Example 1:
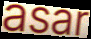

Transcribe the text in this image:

asar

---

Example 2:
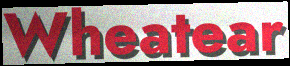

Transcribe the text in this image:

Wheatear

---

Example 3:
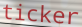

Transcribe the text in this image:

ticker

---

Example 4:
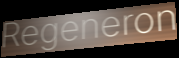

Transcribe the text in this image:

Regeneron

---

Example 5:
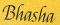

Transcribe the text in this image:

Bhasha